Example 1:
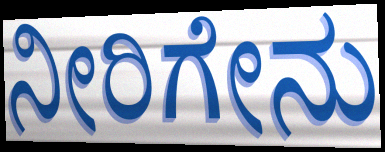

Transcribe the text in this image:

ನೀರಿಗೇನು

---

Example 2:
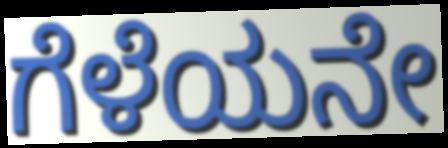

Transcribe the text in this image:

ಗೆಳೆಯನೇ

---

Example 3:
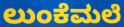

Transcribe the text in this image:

ಲುಂಕೆಮಲೆ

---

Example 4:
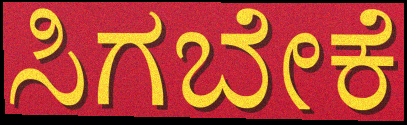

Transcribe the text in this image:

ಸಿಗಬೇಕೆ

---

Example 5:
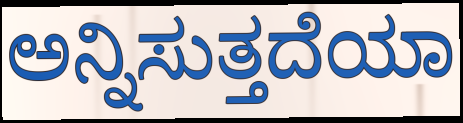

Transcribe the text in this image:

ಅನ್ನಿಸುತ್ತದೆಯಾ